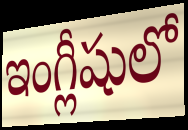
ఇంగ్లీషులో